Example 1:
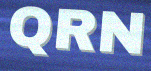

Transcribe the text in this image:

QRN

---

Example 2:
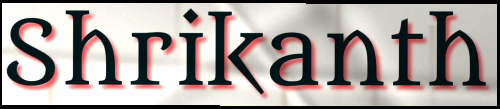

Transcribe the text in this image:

Shrikanth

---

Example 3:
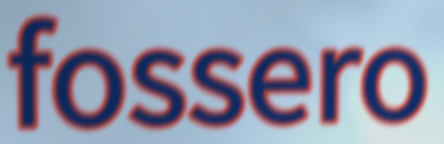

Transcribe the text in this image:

fossero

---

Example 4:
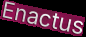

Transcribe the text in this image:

Enactus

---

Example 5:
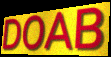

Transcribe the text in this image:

DOAB